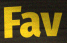
Fav